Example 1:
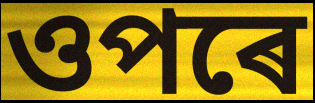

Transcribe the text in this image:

ওপৰে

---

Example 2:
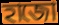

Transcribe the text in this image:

হাজো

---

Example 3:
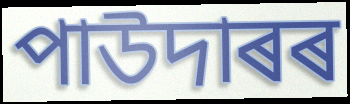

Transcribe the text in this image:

পাউদাৰৰ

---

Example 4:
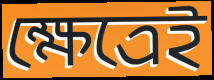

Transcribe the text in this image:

ক্ষেত্ৰেই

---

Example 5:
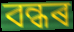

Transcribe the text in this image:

বন্ধৰ